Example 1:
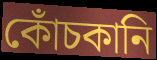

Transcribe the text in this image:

কোঁচকানি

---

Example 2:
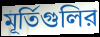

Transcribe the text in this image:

মূর্তিগুলির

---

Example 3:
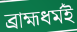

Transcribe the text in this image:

ব্রাহ্মধর্মই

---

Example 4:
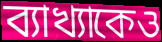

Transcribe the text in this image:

ব্যাখ্যাকেও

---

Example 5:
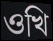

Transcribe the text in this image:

ওখি